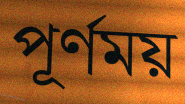
পূর্ণময়